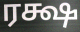
ரக்ஷ